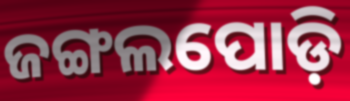
ଜଙ୍ଗଲପୋଡ଼ି